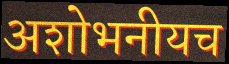
अशोभनीयच